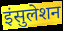
इंसुलेशन